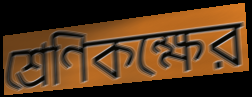
শ্রেণিকক্ষের